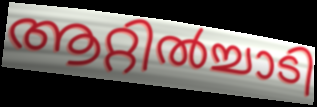
ആറ്റിൽച്ചാടി